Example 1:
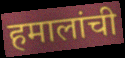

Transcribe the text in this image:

हमालांची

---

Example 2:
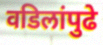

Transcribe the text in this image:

वडिलांपुढे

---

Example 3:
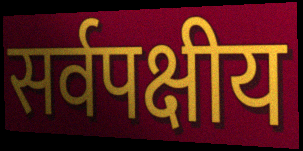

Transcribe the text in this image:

सर्वपक्षीय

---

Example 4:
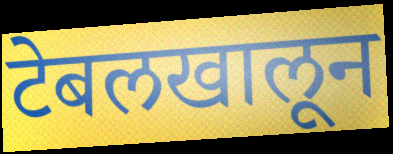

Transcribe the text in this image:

टेबलखालून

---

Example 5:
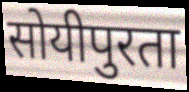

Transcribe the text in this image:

सोयीपुरता